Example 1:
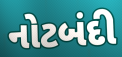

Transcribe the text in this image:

નોટબંદી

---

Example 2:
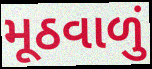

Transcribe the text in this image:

મૂઠવાળું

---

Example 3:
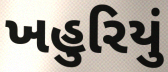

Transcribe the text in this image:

ખહુરિયું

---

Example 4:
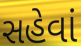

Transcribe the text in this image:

સહેવાં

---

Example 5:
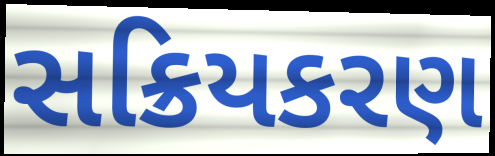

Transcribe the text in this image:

સક્રિયકરણ